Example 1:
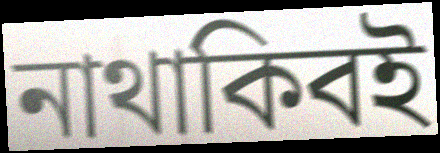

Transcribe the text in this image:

নাথাকিবই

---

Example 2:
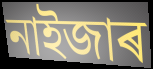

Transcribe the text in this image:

নাইজাৰ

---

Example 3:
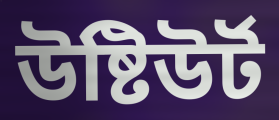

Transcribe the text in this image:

উষ্টিউৰ্ট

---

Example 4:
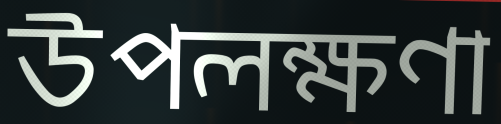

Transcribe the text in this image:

উপলক্ষণা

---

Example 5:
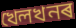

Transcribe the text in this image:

খেলখনৰ